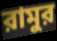
রামুর